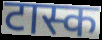
टास्क